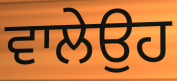
ਵਾਲੇਉਹ